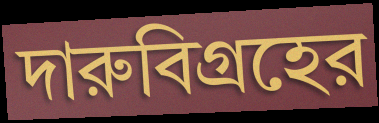
দারুবিগ্রহের